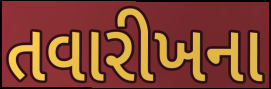
તવારીખના